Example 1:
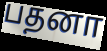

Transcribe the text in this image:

பதனா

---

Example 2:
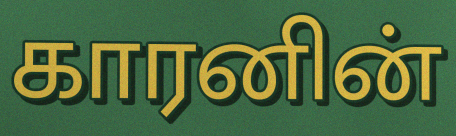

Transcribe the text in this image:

காரனின்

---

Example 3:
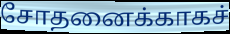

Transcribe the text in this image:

சோதனைக்காகச்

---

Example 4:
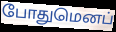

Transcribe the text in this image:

போதுமெனப்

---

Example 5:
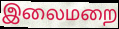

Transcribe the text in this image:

இலைமறை